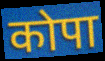
कोपा